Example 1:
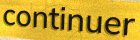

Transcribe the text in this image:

continuer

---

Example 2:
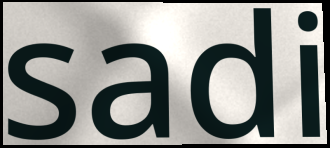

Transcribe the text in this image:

sadi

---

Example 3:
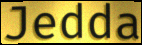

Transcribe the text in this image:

Jedda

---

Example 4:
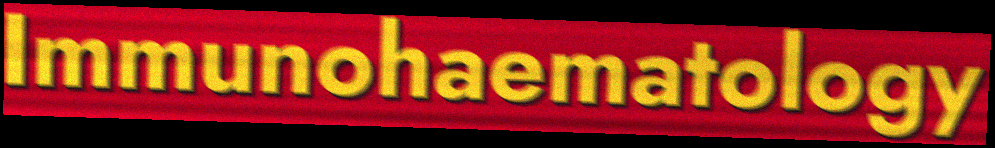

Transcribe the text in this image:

Immunohaematology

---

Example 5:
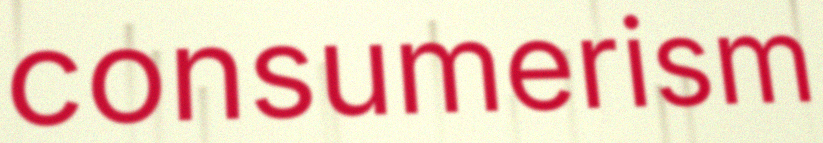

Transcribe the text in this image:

consumerism